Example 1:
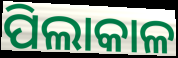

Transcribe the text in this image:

ପିଲାକାଳ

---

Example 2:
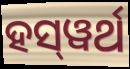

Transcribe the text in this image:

ହସ୍‌ୱର୍ଥ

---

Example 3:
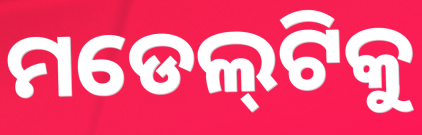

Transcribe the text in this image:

ମଡେଲ୍‌ଟିକୁ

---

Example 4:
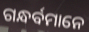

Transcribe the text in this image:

ଗନ୍ଧର୍ବମାନେ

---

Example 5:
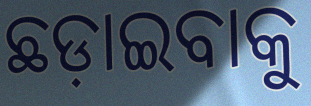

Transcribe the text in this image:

ଛଡ଼ାଇବାକୁ